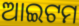
ଆଇଟମ